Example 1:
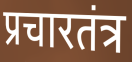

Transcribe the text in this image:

प्रचारतंत्र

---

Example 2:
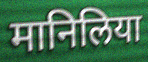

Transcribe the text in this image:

मानिलिया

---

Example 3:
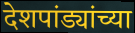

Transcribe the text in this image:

देशपांड्यांच्या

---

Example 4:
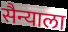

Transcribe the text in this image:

सैन्याला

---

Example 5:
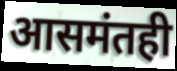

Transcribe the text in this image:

आसमंतही